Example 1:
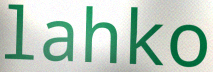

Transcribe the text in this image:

lahko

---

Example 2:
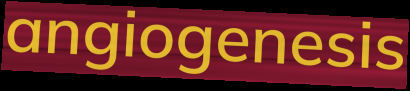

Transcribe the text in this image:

angiogenesis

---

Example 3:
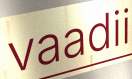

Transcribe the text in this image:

vaadii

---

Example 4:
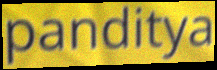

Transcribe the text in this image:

panditya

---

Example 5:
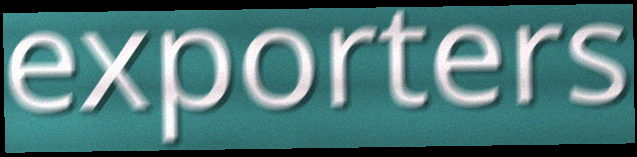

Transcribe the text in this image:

exporters